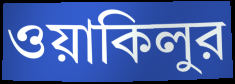
ওয়াকিলুর